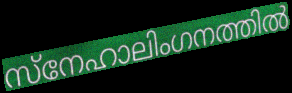
സ്നേഹാലിംഗനത്തിൽ